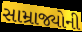
સામ્રાજ્યોની